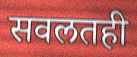
सवलतही